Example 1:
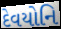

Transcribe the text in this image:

દેવયોનિ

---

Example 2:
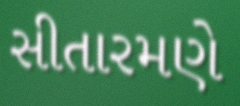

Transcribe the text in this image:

સીતારમણે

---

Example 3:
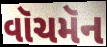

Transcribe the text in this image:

વૉચમૅન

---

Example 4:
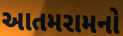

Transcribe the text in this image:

આતમરામનો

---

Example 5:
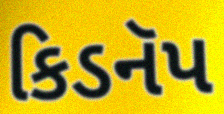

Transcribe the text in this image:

કિડનૅપ